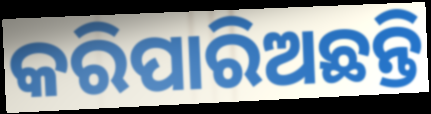
କରିପାରିଅଛନ୍ତି